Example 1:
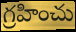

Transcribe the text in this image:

గ్రహించు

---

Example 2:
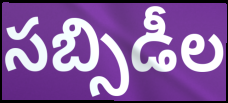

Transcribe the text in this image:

సబ్సిడీల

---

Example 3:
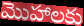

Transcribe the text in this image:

మొహాలకు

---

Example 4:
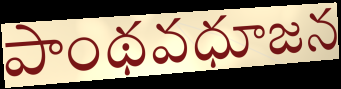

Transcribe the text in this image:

పాంథవధూజన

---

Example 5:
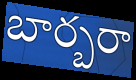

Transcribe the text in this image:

బార్బరా